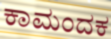
ಕಾಮಂದಕ